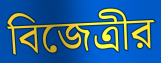
বিজেত্রীর